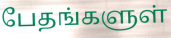
பேதங்களுள்